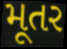
મૂતર